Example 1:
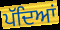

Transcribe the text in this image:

ਪੱਦਿਆਂ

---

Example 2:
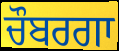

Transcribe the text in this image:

ਚੌਬਰਗਾ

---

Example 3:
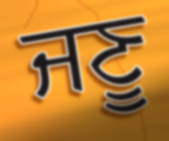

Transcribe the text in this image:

ਜਣੂ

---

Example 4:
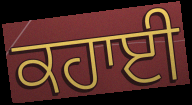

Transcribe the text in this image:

ਕਹਾਈ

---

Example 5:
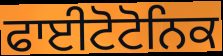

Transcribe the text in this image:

ਫਾਈਟੋਟੋਨਿਕ